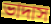
ভাদাস